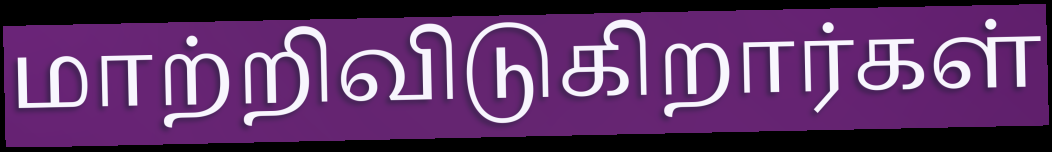
மாற்றிவிடுகிறார்கள்